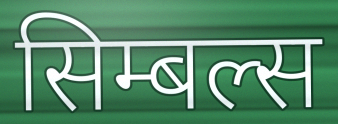
सिम्बल्स